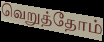
வெறுத்தோம்